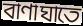
বাণাঘাতে